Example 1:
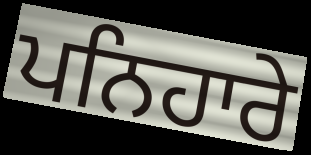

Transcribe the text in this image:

ਪਨਿਹਾਰੇ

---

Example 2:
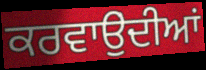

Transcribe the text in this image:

ਕਰਵਾਉੁਂਦੀਆਂ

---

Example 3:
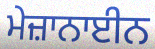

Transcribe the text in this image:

ਮੇਜ਼ਾਨਾਈਨ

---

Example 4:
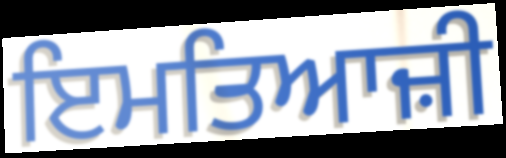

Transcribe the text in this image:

ਇਮਤਿਆਜ਼ੀ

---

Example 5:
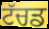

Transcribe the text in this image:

ਟੱਚਡ